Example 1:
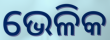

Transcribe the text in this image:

ଭେଳିକ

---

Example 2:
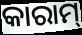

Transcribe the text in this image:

କାରାମ୍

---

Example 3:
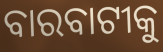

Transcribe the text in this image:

ବାରବାଟୀକୁ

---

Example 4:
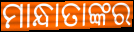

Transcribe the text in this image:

ମାନ୍ଧାତାଙ୍କର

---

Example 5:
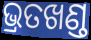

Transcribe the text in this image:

ଭ୍ରତଖଣ୍ଡ